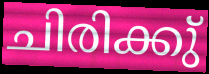
ചിരിക്കു്